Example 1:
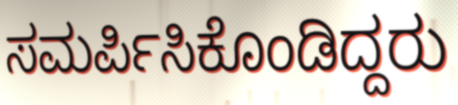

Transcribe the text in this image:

ಸಮರ್ಪಿಸಿಕೊಂಡಿದ್ದರು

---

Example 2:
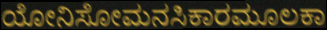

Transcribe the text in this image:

ಯೋನಿಸೋಮನಸಿಕಾರಮೂಲಕಾ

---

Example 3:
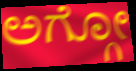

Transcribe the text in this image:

ಅಗ್ಗೋ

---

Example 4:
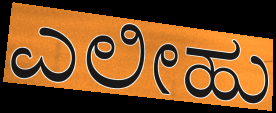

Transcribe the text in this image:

ಎಲೀಹು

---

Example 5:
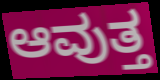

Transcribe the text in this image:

ಆವುತ್ತ